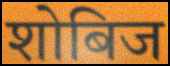
शोबिज